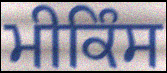
ਮੀਕਿੰਸ